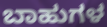
ಬಾಹುಗಳ